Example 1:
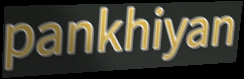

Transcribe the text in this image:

pankhiyan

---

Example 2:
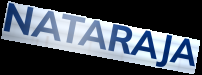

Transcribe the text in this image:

NATARAJA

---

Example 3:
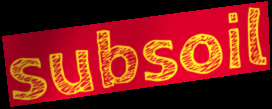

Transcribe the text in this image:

subsoil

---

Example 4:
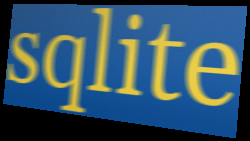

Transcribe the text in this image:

sqlite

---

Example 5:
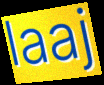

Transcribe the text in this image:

laaj